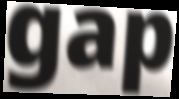
gap